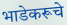
भाडेकरूचे